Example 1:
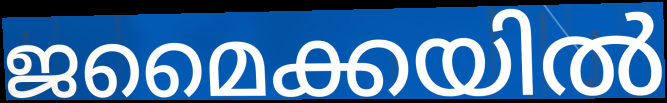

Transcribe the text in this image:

ജമൈക്കയിൽ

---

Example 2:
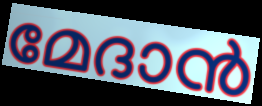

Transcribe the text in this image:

മേദാൻ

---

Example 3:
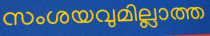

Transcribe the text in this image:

സംശയവുമില്ലാത്ത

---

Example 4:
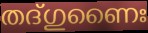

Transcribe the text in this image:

തദ്ഗുണൈഃ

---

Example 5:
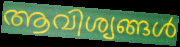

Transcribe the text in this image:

ആവിശ്യങ്ങൾ